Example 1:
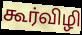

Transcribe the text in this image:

கூர்விழி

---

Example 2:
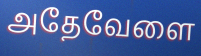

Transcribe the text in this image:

அதேவேளை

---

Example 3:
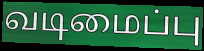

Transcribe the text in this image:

வடிமைப்பு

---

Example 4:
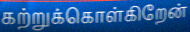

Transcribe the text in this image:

கற்றுக்கொள்கிறேன்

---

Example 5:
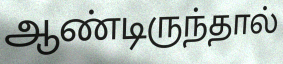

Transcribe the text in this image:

ஆண்டிருந்தால்